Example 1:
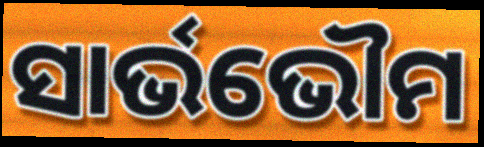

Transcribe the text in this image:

ସାର୍ଭଭୌମ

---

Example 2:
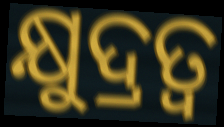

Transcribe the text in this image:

କ୍ଷୁଦ୍ରତ୍ୱ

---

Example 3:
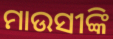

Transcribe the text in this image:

ମାଉସୀଙ୍କି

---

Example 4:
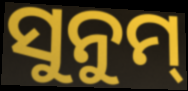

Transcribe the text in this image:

ସୁନୁମ୍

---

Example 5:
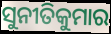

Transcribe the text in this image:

ସୁନୀତିକୁମାର